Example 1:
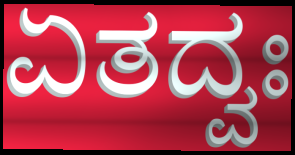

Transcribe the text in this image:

ಏತದ್ವಃ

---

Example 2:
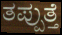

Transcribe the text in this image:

ತಪ್ಪುತ್ತೆ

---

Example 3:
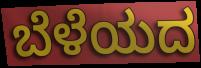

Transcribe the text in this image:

ಬೆಳೆಯದ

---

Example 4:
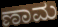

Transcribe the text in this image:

ಣಾಮ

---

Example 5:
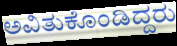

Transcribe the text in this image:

ಅವಿತುಕೊಂಡಿದ್ದರು